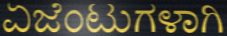
ಏಜೆಂಟುಗಳಾಗಿ